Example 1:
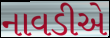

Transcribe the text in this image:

નાવડીએ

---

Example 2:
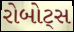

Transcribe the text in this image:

રોબોટ્સ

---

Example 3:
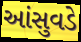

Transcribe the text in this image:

આંસુવડે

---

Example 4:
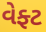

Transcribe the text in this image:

વેફ્ટ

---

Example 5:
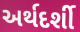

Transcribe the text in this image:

અર્થદર્શી